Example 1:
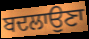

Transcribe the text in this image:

ਬਦਲਾਉਣਾ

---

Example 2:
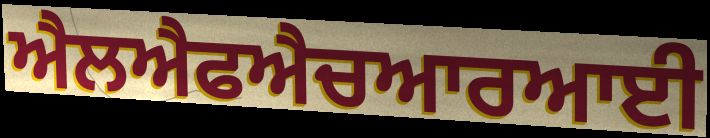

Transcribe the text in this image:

ਐਲਐਫਐਚਆਰਆਈ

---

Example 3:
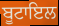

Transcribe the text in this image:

ਬੂਟਾਇਲ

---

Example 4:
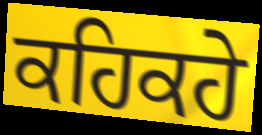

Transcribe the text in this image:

ਕਹਿਕਹੇ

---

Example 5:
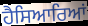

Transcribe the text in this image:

ਹੈਸਿਆਰਿਆਂ